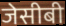
जेसीबी